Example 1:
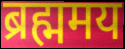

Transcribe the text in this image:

ब्रह्ममय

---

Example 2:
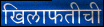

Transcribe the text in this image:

खिलाफतीची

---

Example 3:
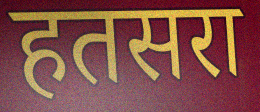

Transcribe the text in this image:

हतसरा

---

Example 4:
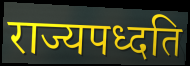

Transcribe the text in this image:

राज्यपध्दति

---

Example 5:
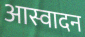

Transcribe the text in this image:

आस्वादन